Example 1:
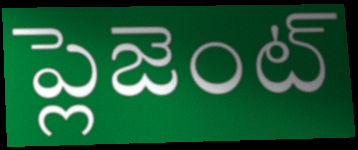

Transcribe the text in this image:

ప్లెజెంట్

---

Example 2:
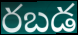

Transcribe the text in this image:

రబడ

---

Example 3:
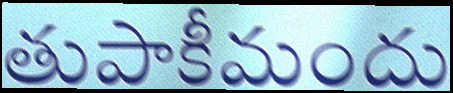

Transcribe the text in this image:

తుపాకీమందు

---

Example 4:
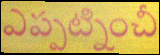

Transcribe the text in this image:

ఎప్పట్నించీ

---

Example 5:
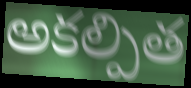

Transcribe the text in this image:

అకల్పిత